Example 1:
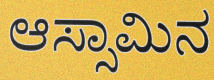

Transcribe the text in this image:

ಆಸ್ಸಾಮಿನ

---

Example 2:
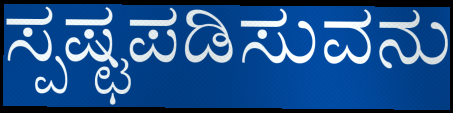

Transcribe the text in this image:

ಸ್ಪಷ್ಟಪಡಿಸುವನು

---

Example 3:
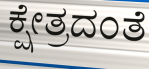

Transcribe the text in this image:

ಕ್ಷೇತ್ರದಂತೆ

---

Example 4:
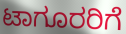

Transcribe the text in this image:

ಟಾಗೂರರಿಗೆ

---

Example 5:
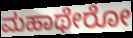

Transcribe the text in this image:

ಮಹಾಥೇರೋ